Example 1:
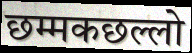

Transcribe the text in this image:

छम्मकछल्लो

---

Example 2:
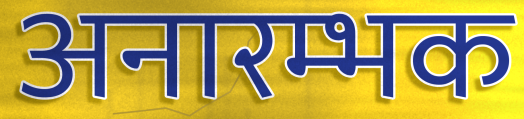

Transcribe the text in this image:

अनारम्भक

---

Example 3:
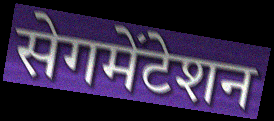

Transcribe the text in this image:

सेगमेंटेशन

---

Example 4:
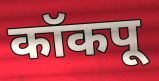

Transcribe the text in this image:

कॉकपू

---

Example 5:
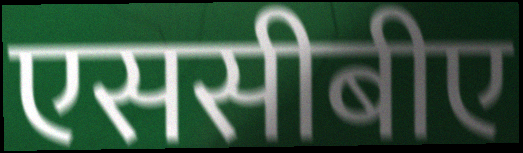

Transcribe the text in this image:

एससीबीए